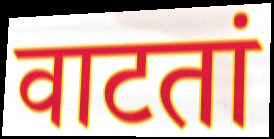
वाटतां